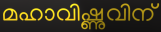
മഹാവിഷ്ണുവിന്